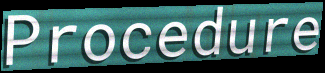
Procedure